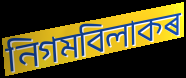
নিগমবিলাকৰ